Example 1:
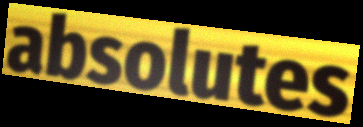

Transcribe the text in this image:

absolutes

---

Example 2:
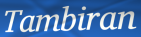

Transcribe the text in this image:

Tambiran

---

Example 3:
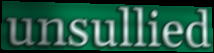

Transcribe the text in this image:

unsullied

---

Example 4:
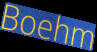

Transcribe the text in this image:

Boehm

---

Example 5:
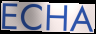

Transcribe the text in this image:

ECHA